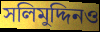
সলিমুদ্দিনও